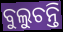
ବୁଲୁଚନ୍ତି